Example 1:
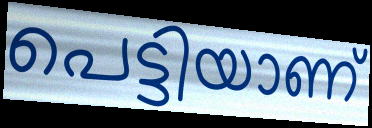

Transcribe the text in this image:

പെട്ടിയാണ്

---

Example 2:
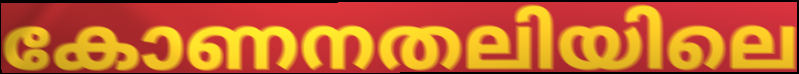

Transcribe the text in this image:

കോണനതലിയിലെ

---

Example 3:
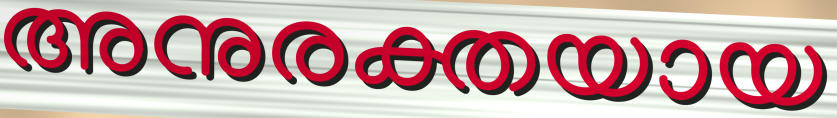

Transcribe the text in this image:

അനുരക്തയായ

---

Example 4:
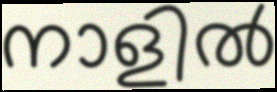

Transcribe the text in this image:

നാളിൽ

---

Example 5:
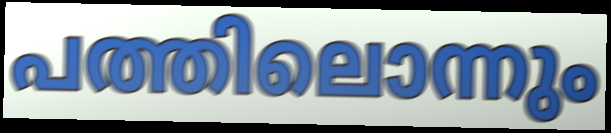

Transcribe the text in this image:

പത്തിലൊന്നും